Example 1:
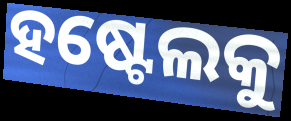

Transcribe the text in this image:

ହଷ୍ଟେଲକୁ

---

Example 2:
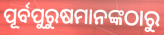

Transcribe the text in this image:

ପୂର୍ବପୁରୁଷମାନଙ୍କଠାରୁ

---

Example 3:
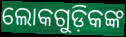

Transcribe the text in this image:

ଲୋକଗୁଡ଼ିକଙ୍କ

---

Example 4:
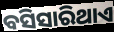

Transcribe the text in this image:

ବସିସାରିଥାଏ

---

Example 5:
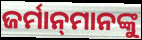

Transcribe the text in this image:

ଜର୍ମାନ୍‌ମାନଙ୍କୁ